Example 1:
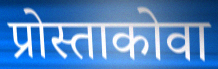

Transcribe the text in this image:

प्रोस्ताकोवा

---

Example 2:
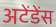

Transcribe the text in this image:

अटेंडेंस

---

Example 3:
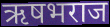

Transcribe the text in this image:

ऋषभराज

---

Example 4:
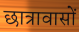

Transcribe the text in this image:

छात्रावासों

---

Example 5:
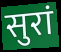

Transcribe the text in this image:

सुरां